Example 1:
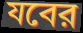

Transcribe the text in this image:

যবের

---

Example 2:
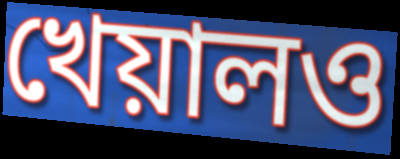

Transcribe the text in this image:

খেয়ালও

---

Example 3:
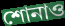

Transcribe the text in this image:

শোনাও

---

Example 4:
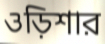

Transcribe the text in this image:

ওড়িশার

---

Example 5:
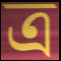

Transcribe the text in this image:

ত্র